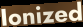
Ionized